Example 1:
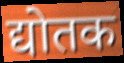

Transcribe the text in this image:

द्योतक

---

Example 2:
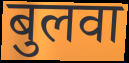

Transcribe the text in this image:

बुलवा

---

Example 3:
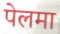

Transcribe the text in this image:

पेलमा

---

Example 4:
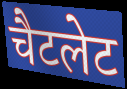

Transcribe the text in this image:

चैटलेट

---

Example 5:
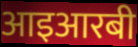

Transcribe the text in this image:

आइआरबी